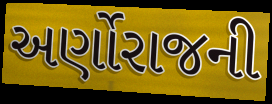
અર્ણોરાજની